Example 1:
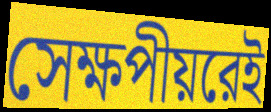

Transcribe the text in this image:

সেক্ষপীয়রেই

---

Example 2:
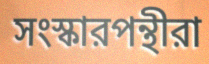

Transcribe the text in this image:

সংস্কারপন্থীরা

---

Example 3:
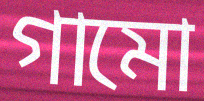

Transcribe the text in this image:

গামো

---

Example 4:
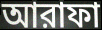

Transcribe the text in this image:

আরাফা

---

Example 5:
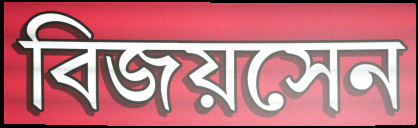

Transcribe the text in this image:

বিজয়সেন